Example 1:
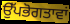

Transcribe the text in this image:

ਉੱਪਭੋਗਤਾਵਾਂ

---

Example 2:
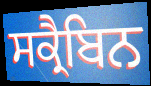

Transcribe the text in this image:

ਸਕ੍ਰੈਬਿਨ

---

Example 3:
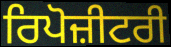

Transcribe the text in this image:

ਰਿਪੋਜ਼ੀਟਰੀ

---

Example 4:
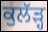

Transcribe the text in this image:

ਕੁਲੱੜ੍ਹ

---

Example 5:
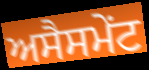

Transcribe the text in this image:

ਅਸੈਸਮੇਂਟ